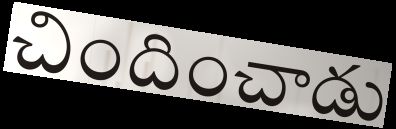
చిందించాడు